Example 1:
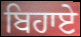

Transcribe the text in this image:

ਬਿਹਾਏ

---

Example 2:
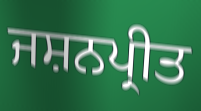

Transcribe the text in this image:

ਜਸ਼ਨਪ੍ਰੀਤ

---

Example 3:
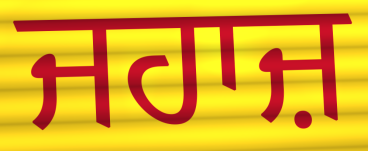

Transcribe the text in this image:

ਜਹਾਜ਼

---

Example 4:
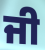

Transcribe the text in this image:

ਜੀ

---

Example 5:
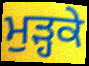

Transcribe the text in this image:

ਮੁੜ੍ਹਕੇ